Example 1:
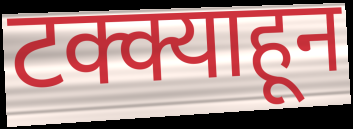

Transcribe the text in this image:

टक्क्याहून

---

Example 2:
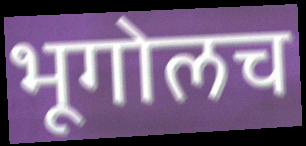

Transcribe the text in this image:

भूगोलच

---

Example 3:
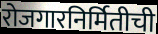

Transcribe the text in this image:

रोजगारनिर्मितीची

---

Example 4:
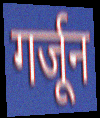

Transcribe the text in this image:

गर्जून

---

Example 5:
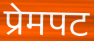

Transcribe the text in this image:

प्रेमपट